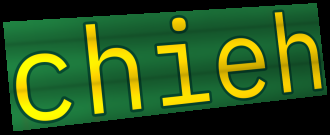
chieh